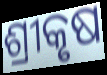
ଶ୍ରୀକୃଷ